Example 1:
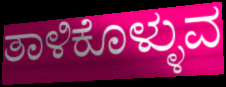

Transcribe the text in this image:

ತಾಳಿಕೊಳ್ಳುವ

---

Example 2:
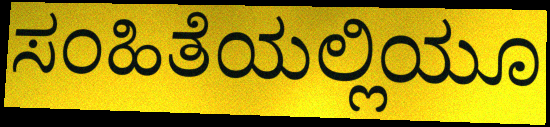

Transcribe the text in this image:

ಸಂಹಿತೆಯಲ್ಲಿಯೂ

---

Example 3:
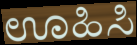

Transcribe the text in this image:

ಊಹಿಸಿ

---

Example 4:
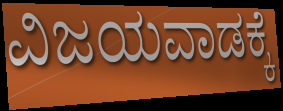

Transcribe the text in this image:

ವಿಜಯವಾಡಕ್ಕೆ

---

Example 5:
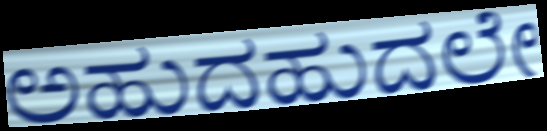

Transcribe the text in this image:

ಅಹುದಹುದಲೇ